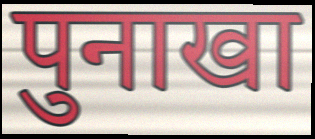
पुनाखा